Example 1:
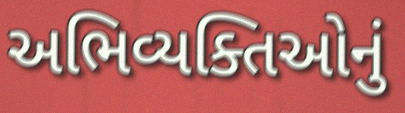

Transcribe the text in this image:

અભિવ્યક્તિઓનું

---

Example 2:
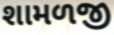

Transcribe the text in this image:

શામળજી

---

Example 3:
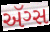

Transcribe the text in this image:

ઍગ્સ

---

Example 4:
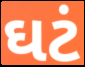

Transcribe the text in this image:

ઘટં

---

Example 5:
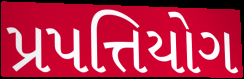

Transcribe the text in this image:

પ્રપત્તિયોગ